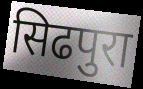
सिढपुरा